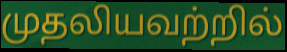
முதலியவற்றில்